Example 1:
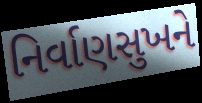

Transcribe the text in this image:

નિર્વાણસુખને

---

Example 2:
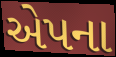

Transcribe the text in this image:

એપના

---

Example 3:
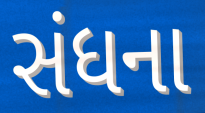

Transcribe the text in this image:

સંધના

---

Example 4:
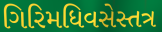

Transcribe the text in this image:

ગિરિમધિવસેસ્તત્ર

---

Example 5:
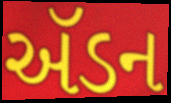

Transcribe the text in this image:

ઍડન